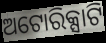
ଅଟୋରିକ୍ସାଟି